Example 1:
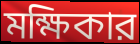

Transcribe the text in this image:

মক্ষিকার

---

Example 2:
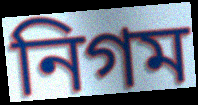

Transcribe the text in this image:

নিগম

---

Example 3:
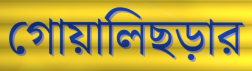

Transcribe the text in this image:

গোয়ালিছড়ার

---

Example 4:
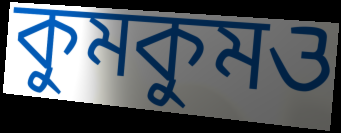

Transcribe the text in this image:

কুমকুমও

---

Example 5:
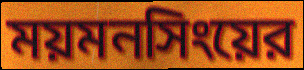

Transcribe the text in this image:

ময়মনসিংয়ের